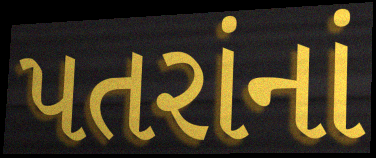
પતરાંનાં